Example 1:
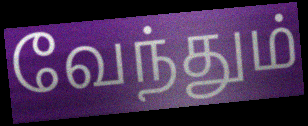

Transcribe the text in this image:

வேந்தும்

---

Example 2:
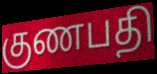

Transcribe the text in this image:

குணபதி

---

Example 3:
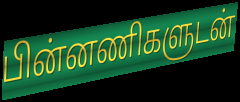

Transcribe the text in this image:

பின்னணிகளுடன்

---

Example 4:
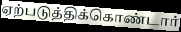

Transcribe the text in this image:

ஏற்படுத்திக்கொண்டார்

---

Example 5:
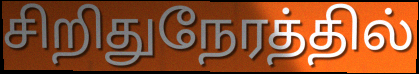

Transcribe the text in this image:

சிறிதுநேரத்தில்